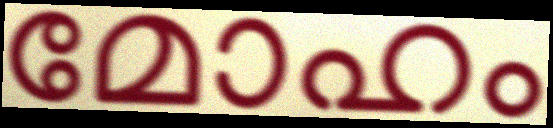
മോഹം